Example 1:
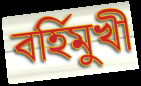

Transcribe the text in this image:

বৰ্হিমুখী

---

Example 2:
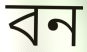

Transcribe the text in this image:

বন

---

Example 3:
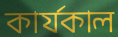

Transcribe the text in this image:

কাৰ্যকাল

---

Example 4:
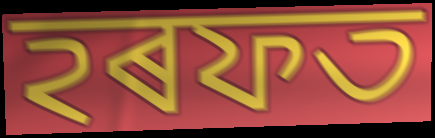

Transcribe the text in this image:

হৰফত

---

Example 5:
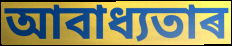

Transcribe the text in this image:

আবাধ্যতাৰ